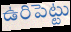
ఉరిపెట్టు